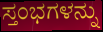
ಸ್ತಂಭಗಳನ್ನು